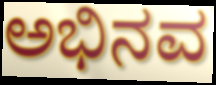
ಅಭಿನವ